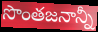
సొంతజనాన్నీ